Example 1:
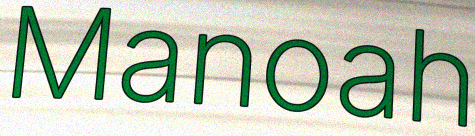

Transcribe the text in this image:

Manoah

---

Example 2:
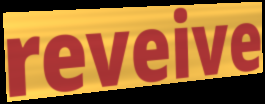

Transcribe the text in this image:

reveive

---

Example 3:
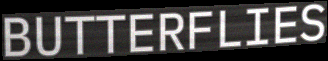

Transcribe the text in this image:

BUTTERFLIES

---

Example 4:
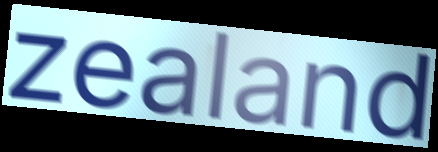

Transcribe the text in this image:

zealand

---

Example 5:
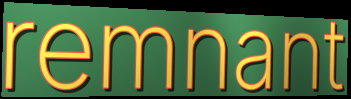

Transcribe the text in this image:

remnant